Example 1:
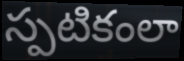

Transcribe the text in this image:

స్పటికంలా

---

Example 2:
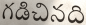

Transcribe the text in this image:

గడిచినది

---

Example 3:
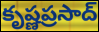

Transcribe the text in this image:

కృష్ణప్రసాద్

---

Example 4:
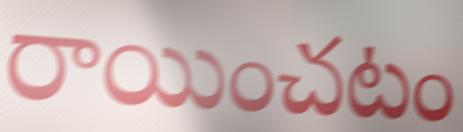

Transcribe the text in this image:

రాయించటం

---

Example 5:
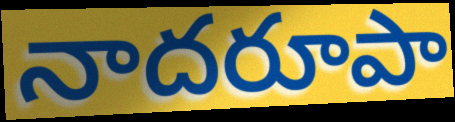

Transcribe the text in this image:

నాదరూపా